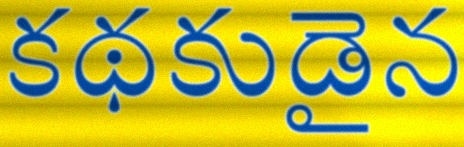
కథకుడైన